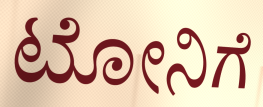
ಟೋನಿಗೆ